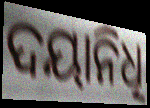
ଦୟାନିଧି